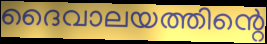
ദൈവാലയത്തിന്റെ